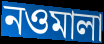
নওমালা